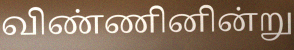
விண்ணினின்று